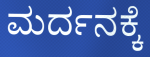
ಮರ್ದನಕ್ಕೆ